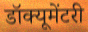
डॉक्यूमेंटरी